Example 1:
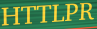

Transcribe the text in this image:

HTTLPR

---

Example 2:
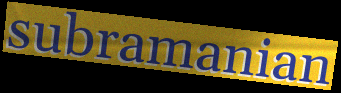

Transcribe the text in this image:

subramanian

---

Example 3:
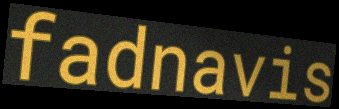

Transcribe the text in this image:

fadnavis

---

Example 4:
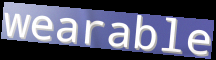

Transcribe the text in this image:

wearable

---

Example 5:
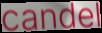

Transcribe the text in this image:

candel